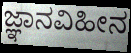
ಜ್ಞಾನವಿಹೀನ